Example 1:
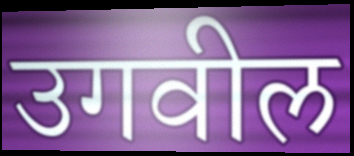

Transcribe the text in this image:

उगवील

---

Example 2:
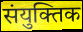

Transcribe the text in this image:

संयुक्तिक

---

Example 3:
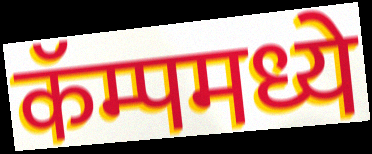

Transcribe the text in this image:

कॅम्पमध्ये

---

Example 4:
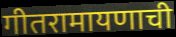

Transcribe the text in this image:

गीतरामायणाची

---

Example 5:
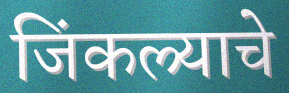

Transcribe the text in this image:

जिंकल्याचे